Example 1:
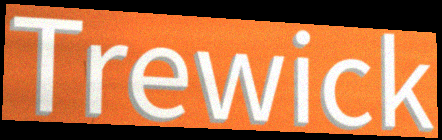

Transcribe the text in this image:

Trewick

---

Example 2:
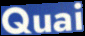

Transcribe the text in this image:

Quai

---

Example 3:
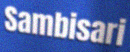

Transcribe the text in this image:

Sambisari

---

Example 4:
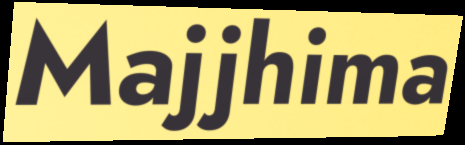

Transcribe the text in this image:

Majjhima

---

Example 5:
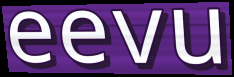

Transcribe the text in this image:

eevu